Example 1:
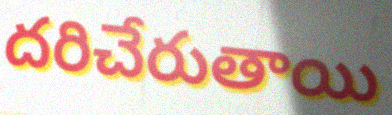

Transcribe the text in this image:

దరిచేరుతాయి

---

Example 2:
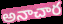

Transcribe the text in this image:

అనాచార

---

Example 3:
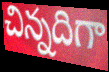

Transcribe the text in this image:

చిన్నదిగా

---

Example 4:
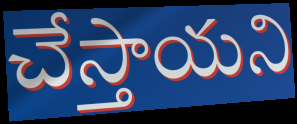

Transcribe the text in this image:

చేస్తాయని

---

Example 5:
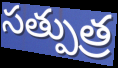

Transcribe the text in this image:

సత్పుత్ర